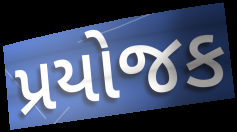
પ્રયોજક